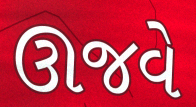
ઊજવે